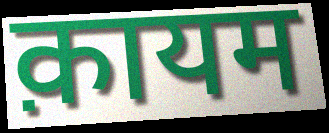
क़ायम